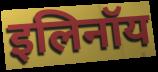
इलिनॉय